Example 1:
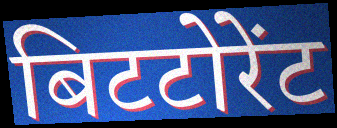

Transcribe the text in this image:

बिटटोरेंट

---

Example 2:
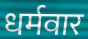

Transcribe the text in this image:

धर्मवार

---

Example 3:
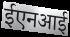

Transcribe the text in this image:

ईएनआई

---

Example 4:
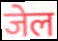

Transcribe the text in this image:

जेल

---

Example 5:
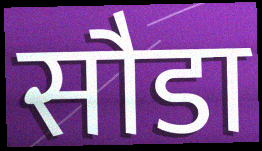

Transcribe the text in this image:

सौडा